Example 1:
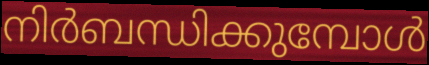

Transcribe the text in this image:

നിർബന്ധിക്കുമ്പോൾ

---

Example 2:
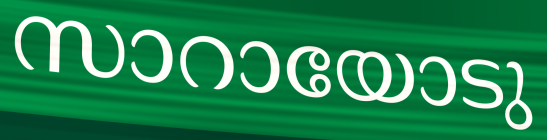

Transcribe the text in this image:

സാറായോടു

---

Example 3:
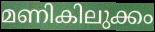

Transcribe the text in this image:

മണികിലുക്കം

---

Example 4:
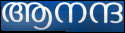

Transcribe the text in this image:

ആനന്ദ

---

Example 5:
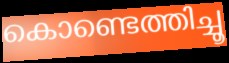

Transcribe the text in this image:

കൊണ്ടെത്തിച്ചൂ